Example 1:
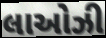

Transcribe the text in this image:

લાઓઝી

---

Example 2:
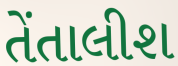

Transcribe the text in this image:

તેંતાલીશ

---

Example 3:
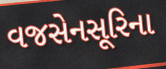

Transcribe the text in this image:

વજસેનસૂરિના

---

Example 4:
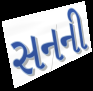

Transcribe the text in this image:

સનની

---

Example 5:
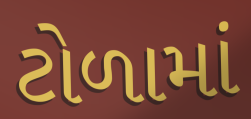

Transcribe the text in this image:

ટોળામાં